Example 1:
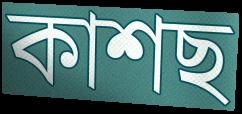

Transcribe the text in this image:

কাশছ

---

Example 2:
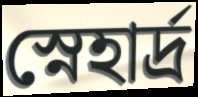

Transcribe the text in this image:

স্নেহার্দ্র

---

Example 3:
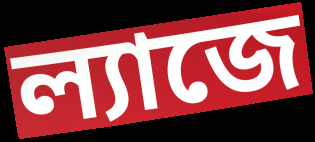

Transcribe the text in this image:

ল্যাজে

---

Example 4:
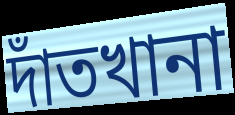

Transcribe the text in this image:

দাঁতখানা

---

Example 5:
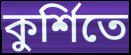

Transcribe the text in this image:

কুর্শিতে